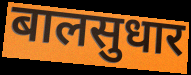
बालसुधार